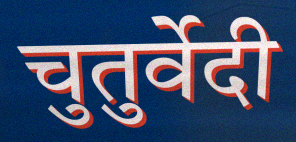
चुतुर्वेदी